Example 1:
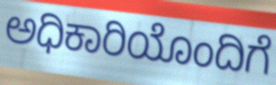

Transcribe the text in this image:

ಅಧಿಕಾರಿಯೊಂದಿಗೆ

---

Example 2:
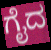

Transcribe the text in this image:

ಗೈದ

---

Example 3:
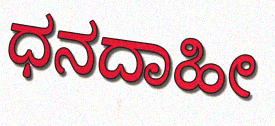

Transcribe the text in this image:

ಧನದಾಹೀ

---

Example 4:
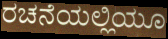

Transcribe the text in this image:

ರಚನೆಯಲ್ಲಿಯೂ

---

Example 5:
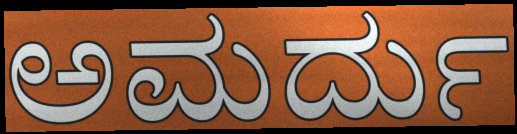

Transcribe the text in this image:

ಅಮರ್ದು